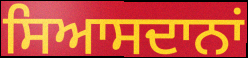
ਸਿਆਸਦਾਨਾਂ